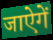
जाऐगें